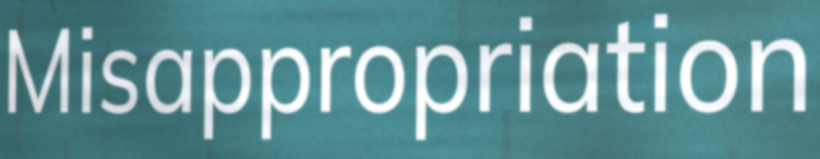
Misappropriation